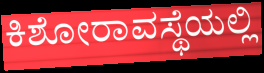
ಕಿಶೋರಾವಸ್ಥೆಯಲ್ಲಿ